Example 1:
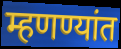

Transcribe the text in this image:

म्हणण्यांत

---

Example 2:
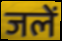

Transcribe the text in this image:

जलें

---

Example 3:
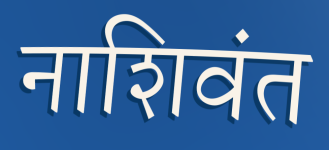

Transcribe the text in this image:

नाशिवंत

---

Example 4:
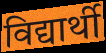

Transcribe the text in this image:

विद्यार्थी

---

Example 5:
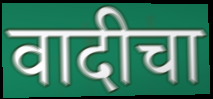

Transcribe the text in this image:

वादीचा